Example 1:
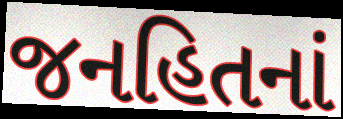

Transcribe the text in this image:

જનહિતનાં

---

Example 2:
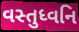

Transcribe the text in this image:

વસ્તુધ્વનિ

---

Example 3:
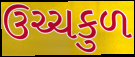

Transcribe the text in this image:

ઉચ્ચકુળ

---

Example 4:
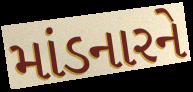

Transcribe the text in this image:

માંડનારને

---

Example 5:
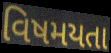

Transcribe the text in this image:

વિષમયતા